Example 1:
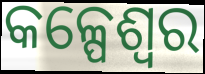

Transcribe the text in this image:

କଳ୍ପେଶ୍ୱର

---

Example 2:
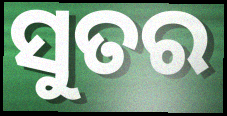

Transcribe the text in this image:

ସୁତର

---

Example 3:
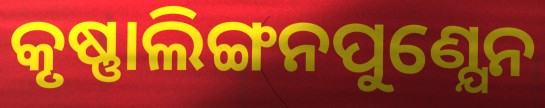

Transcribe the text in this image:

କୃଷ୍ଣାଲିଙ୍ଗନପୁଣ୍ଯେନ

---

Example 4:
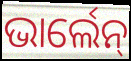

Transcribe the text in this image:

ଭାର୍ଲେନ୍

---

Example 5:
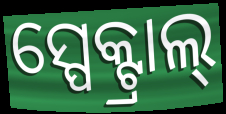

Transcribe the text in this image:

ସ୍ପେକ୍ଟ୍ରାଲ୍